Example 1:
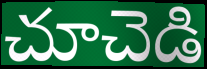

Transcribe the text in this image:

చూచెడి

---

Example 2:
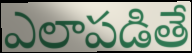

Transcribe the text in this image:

ఎలాపడితే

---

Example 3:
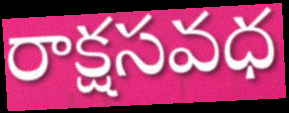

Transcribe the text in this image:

రాక్షసవధ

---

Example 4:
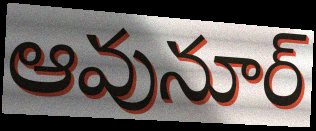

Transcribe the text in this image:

ఆవునూర్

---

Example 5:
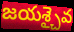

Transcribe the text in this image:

జయశ్చైవ